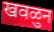
खवळुन